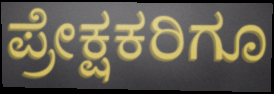
ಪ್ರೇಕ್ಷಕರಿಗೂ